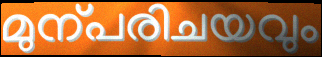
മുന്പരിചയവും